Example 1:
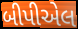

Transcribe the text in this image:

બીપીએલ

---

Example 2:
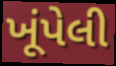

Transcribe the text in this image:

ખૂંપેલી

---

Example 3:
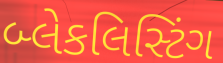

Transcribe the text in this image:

બ્લેકલિસ્ટિંગ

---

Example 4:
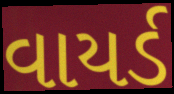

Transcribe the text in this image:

વાયર્ડ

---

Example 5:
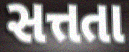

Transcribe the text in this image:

સત્તતા